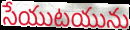
సేయుటయును